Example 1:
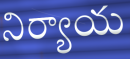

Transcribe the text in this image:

నిర్యాయ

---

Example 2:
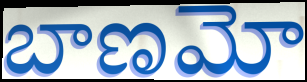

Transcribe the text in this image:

బాణమో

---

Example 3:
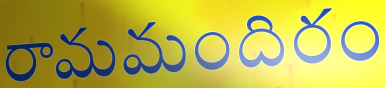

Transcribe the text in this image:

రామమందిరం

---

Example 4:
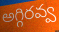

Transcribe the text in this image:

అగ్గిరవ్వ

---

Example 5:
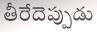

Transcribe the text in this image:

తీరేదెప్పుడు